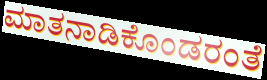
ಮಾತನಾಡಿಕೊಂಡರಂತೆ